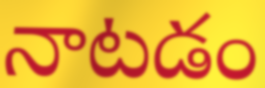
నాటడం